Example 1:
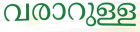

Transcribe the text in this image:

വരാറുള്ള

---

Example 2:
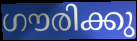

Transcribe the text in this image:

ഗൗരിക്കു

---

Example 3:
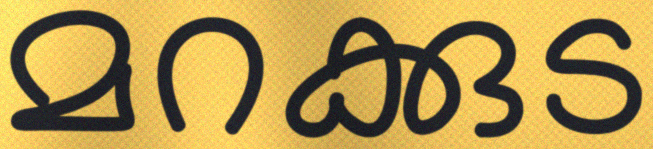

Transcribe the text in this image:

മറക്കുട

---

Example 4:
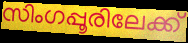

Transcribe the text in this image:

സിംഗപ്പൂരിലേക്ക്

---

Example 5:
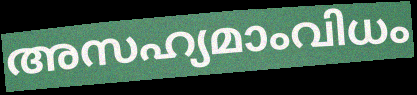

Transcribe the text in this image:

അസഹ്യമാംവിധം